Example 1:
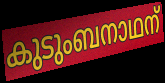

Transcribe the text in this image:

കുടുംബനാഥന്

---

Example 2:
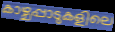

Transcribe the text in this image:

കാഴ്ചപ്പാടുകളിലെ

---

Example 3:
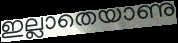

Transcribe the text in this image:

ഇല്ലാതെയാണു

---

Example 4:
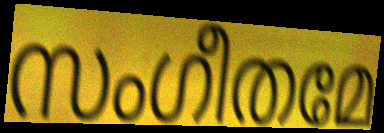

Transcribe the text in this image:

സംഗീതമേ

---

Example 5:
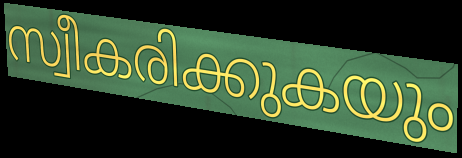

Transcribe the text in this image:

സ്വീകരിക്കുകയും